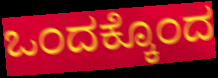
ಒಂದಕ್ಕೊಂದ